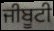
ਜੀਬੂਟੀ